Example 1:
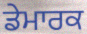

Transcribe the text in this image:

ਡੇਮਾਰਕ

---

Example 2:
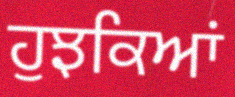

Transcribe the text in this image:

ਹੁਝਕਿਆਂ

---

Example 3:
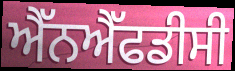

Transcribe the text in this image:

ਐੱਨਐੱਫਡੀਸੀ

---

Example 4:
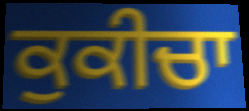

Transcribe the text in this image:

ਕੁਕੀਚਾ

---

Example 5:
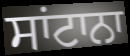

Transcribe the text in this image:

ਸਾਂਟਾਨਾ